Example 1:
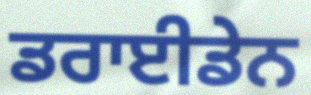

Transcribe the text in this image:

ਡਰਾਈਡੇਨ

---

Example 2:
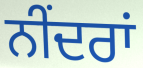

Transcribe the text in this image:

ਨੀਂਦਰਾਂ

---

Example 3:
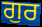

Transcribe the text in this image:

ਗੁਰ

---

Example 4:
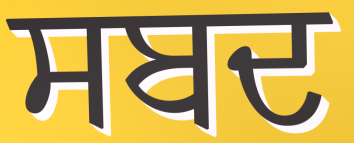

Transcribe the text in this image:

ਸਬਦ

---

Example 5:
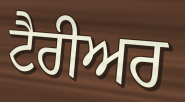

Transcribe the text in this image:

ਟੈਰੀਅਰ